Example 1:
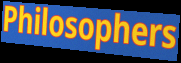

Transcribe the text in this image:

Philosophers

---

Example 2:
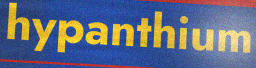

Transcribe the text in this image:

hypanthium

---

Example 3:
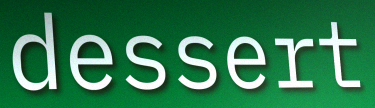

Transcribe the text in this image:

dessert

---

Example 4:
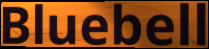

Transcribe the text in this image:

Bluebell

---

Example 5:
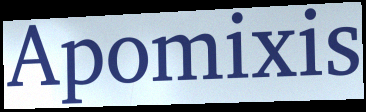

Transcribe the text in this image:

Apomixis